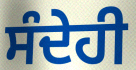
ਸੰਦੇਹੀ